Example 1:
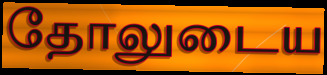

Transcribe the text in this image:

தோலுடைய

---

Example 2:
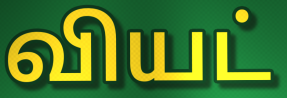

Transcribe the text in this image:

வியட்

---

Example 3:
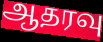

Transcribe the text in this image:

ஆதரவு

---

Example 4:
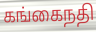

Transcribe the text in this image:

கங்கைநதி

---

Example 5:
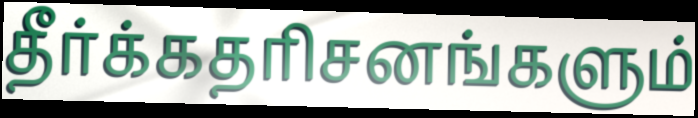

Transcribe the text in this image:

தீர்க்கதரிசனங்களும்